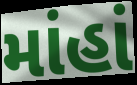
માંહાં